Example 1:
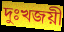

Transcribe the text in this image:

দুঃখজয়ী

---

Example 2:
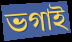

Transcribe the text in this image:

ভগাই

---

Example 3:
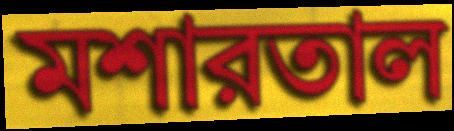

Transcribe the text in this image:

মশারতাল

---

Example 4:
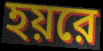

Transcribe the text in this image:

হয়রে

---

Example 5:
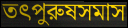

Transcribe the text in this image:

তৎপুরুষসমাস